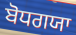
ਬੋਧਗਯਾ